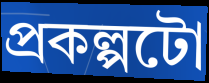
প্ৰকল্পটো